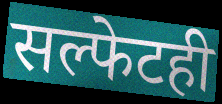
सल्फेटही